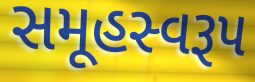
સમૂહસ્વરૂપ